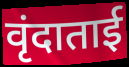
वृंदाताई